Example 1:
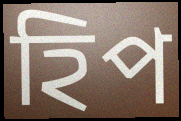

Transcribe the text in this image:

হিপ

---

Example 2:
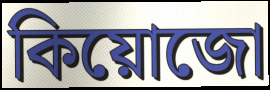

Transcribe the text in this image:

কিয়োজো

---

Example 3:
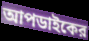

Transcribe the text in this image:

আপডাইকের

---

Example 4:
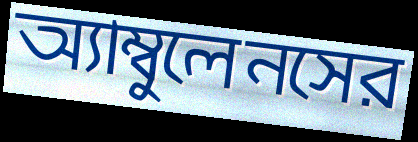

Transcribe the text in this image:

অ্যাম্বুলেনসের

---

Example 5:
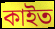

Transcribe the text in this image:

কাইত